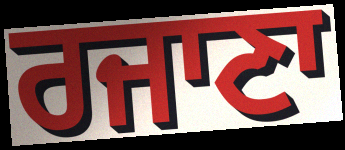
ਰਜਾਣਾ